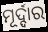
ମୂର୍ଦ୍ଦାର